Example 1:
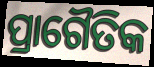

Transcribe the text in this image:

ପ୍ରାଗୈତିକ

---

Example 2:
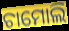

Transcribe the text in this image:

ଚାମୋଲି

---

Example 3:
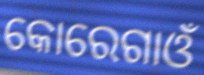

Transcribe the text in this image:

କୋରେଗାଓଁ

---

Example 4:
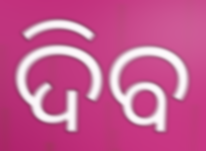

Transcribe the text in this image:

ଦିବ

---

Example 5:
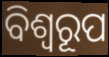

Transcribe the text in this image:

ବିଶ୍ବରୂପ